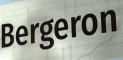
Bergeron